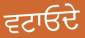
ਵਟਾਓਦੇ